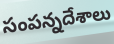
సంపన్నదేశాలు